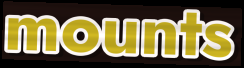
mounts